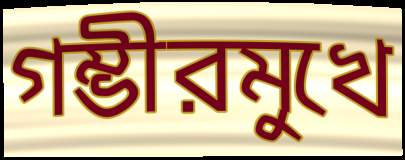
গম্ভীরমুখে